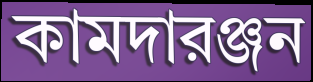
কামদারঞ্জন